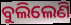
ବୁଲିଲେଣି